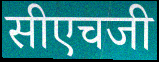
सीएचजी